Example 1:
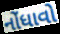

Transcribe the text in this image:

નોંધાવો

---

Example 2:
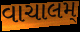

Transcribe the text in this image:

વાચાલમ્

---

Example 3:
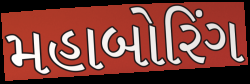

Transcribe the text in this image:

મહાબોરિંગ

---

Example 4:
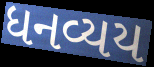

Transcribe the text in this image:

ધનવ્યય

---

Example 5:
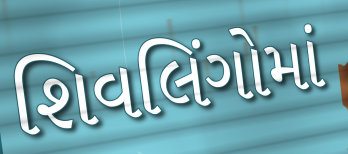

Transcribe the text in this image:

શિવલિંગોમાં